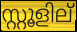
സ്റ്റൂളില്